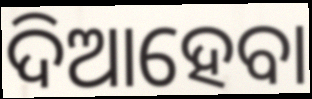
ଦିଆହେବା